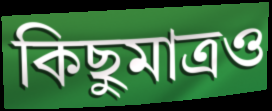
কিছুমাত্রও